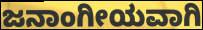
ಜನಾಂಗೀಯವಾಗಿ